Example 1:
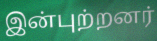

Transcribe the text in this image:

இன்புற்றனர்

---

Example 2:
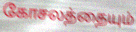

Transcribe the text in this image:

கோசலத்தையும்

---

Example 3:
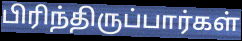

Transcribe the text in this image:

பிரிந்திருப்பார்கள்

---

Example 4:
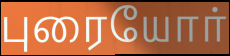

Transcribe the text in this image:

புரையோர்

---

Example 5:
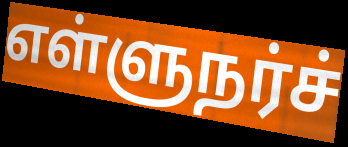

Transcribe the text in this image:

எள்ளுநர்ச்